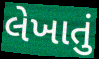
લેખાતું